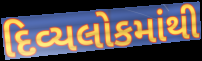
દિવ્યલોકમાંથી